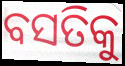
ବସତିକୁ